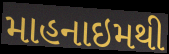
માહનાઇમથી